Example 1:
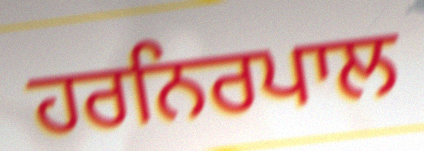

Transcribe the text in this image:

ਹਰਨਿਰਪਾਲ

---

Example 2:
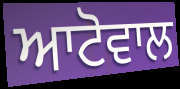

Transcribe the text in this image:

ਆਟੋਵਾਲ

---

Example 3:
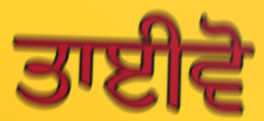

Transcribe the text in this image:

ਤਾਈਵੋ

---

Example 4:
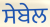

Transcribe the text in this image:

ਸੇਬੇਲ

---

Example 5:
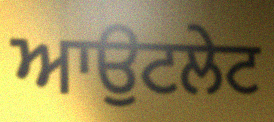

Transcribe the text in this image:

ਆਉਟਲੇਟ